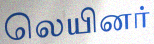
லெயினர்